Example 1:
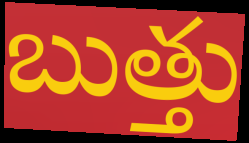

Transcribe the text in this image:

బుత్తు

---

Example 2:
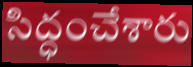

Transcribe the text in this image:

సిద్ధంచేశారు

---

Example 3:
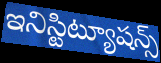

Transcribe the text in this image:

ఇనిస్టిట్యూషన్స్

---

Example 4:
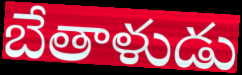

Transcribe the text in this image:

బేతాళుడు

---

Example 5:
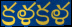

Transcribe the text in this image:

కళకళ